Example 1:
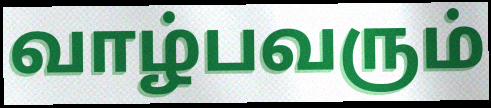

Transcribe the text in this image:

வாழ்பவரும்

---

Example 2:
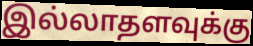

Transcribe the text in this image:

இல்லாதளவுக்கு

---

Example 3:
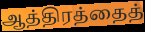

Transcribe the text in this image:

ஆத்திரத்தைத்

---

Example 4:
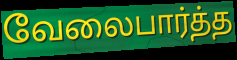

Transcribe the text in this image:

வேலைபார்த்த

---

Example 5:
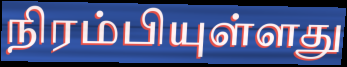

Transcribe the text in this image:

நிரம்பியுள்ளது